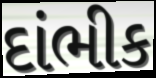
દાંભીક